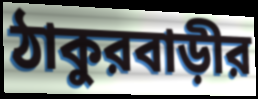
ঠাকুরবাড়ীর